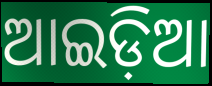
ଆଇଡ଼ିଆ